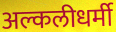
अल्कलीधर्मी